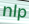
nlp